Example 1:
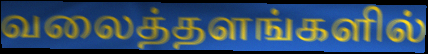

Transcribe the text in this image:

வலைத்தளங்களில்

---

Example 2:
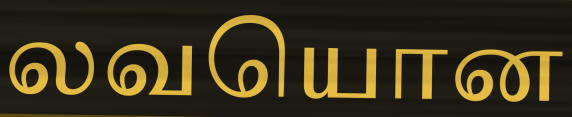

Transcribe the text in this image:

லவயொன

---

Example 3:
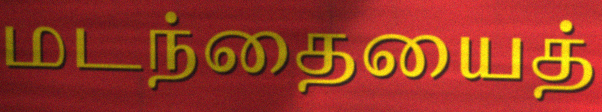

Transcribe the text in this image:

மடந்தையைத்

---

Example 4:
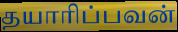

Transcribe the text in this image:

தயாரிப்பவன்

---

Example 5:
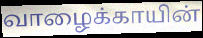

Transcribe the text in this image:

வாழைக்காயின்